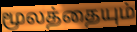
மூலத்தையும்